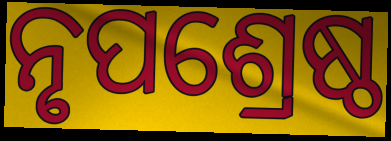
ନୃପଶ୍ରେଷ୍ଠ